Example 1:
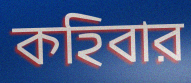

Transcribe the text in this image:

কহিবার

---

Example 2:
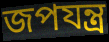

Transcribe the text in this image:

জপযন্ত্র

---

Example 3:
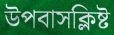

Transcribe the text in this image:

উপবাসক্লিষ্ট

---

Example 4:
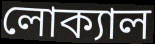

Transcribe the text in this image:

লোক্যাল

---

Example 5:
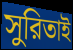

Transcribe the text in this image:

সুরিতাই